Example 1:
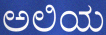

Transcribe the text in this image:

ಅಲಿಯ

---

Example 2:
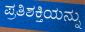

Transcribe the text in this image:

ಪ್ರತಿಶಕ್ತಿಯನ್ನು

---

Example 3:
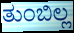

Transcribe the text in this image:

ತುಂಬಿಲ್ಲ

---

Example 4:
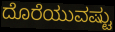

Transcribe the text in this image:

ದೊರೆಯುವಷ್ಟು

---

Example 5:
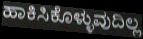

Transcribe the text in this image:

ಹಾಕಿಸಿಕೊಳ್ಳುವುದಿಲ್ಲ